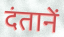
दंतानें